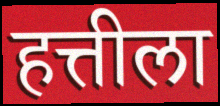
हत्तीला